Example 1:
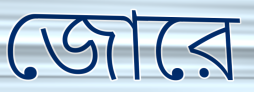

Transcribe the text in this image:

জোরে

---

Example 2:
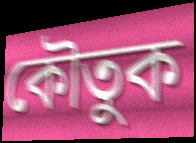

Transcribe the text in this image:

কৌতুক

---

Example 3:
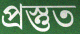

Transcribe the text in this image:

প্রস্তুত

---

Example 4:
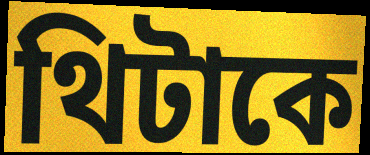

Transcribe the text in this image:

থিটাকে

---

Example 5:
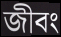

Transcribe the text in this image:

জীবং